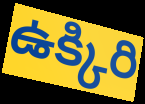
ఉక్కిరి